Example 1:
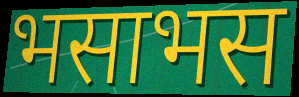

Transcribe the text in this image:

भसाभस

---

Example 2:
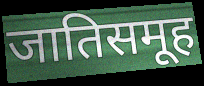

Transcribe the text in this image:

जातिसमूह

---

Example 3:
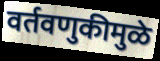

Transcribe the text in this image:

वर्तवणुकीमुळे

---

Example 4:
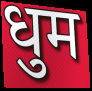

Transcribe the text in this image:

धुम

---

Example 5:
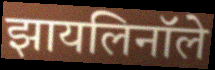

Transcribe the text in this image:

झायलिनॉले